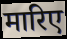
मारिए